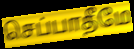
செப்பாதீமே